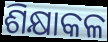
ଶିକ୍ଷାକଳ